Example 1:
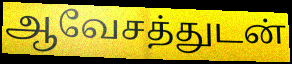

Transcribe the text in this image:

ஆவேசத்துடன்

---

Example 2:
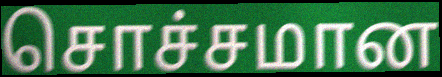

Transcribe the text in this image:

சொச்சமான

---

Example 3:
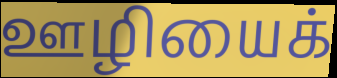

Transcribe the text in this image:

ஊழியைக்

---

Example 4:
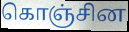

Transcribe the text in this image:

கொஞ்சின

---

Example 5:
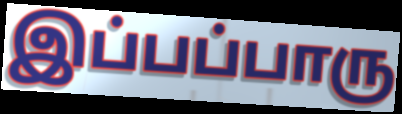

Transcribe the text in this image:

இப்பப்பாரு